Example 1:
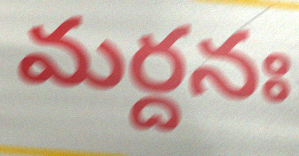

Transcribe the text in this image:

మర్దనః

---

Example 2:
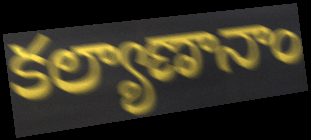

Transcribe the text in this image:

కల్యాణానాం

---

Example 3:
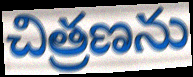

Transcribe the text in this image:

చిత్రణను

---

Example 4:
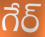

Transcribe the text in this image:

గేర్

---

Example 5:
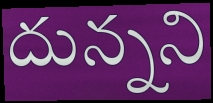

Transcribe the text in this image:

దున్నని